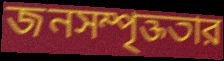
জনসম্পৃক্ততার